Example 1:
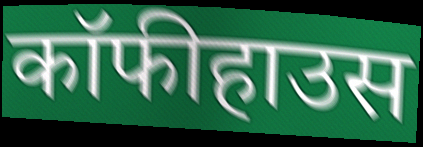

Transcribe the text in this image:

कॉफीहाउस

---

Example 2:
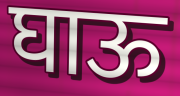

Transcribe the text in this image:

घाऊ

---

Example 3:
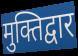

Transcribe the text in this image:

मुक्तिद्वार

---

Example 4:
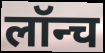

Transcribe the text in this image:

लॉन्च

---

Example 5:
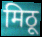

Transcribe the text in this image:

मिठू